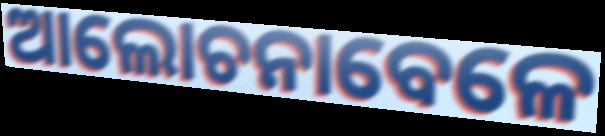
ଆଲୋଚନାବେଳେ